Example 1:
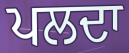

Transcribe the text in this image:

ਪਲਦਾ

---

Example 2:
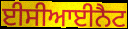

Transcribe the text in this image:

ਈਸੀਆਈਨੈਟ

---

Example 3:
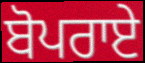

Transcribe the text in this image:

ਬੋਪਰਾਏ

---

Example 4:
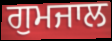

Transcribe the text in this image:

ਗੁਮਜਾਲ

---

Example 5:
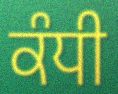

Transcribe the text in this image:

ਕੰਧੀ